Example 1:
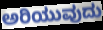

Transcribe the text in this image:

ಅರಿಯುವುದು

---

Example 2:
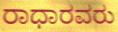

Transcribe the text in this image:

ರಾಧಾರವರು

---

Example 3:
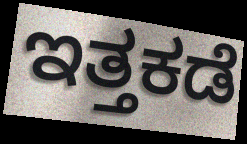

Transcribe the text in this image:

ಇತ್ತಕಡೆ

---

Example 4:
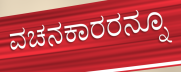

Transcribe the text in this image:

ವಚನಕಾರರನ್ನೂ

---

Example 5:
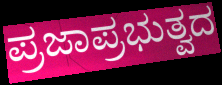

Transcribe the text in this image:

ಪ್ರಜಾಪ್ರಭುತ್ವದ